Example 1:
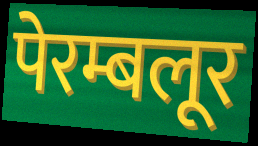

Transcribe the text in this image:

पेरम्बलूर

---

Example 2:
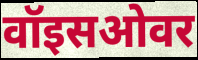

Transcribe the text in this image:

वॉइसओवर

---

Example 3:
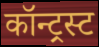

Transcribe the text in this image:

कॉन्ट्रस्ट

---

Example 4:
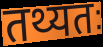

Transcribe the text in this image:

तथ्यतः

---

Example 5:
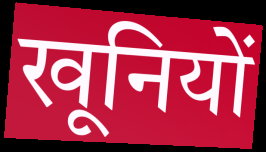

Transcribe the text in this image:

खूनियों